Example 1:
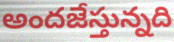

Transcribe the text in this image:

అందజేస్తున్నది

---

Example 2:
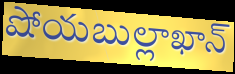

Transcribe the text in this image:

షోయబుల్లాఖాన్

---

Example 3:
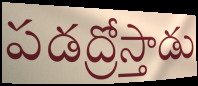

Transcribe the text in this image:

పడద్రోస్తాడు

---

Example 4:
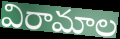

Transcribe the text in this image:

విరామాల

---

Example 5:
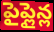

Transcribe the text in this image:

పైప్లైన్ల